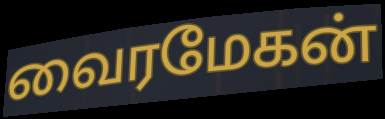
வைரமேகன்